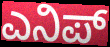
ಎನಿಪ್